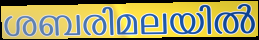
ശബരിമലയിൽ